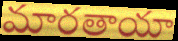
మారతాయా